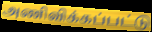
அணிவிக்கப்பட்டு